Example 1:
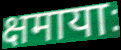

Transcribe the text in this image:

क्षमायाः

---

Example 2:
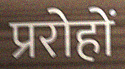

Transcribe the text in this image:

प्ररोहों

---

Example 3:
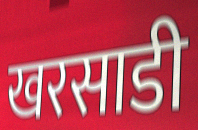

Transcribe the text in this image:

खरसाडी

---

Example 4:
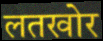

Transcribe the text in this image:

लतखोर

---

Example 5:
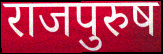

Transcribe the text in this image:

राजपुरुष